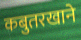
कबुतरखाने